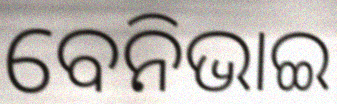
ବେନିଭାଇ